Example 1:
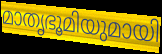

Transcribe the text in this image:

മാതൃഭൂമിയുമായി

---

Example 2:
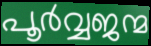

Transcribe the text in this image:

പൂർവ്വജന്മ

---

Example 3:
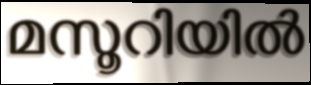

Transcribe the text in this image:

മസൂറിയിൽ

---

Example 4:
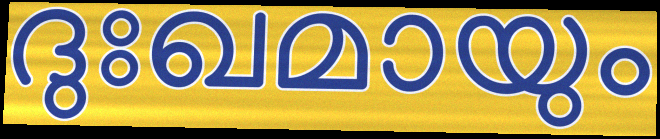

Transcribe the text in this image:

ദുഃഖമായും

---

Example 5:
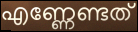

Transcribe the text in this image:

എണ്ണേണ്ടത്